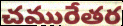
చమురేతర